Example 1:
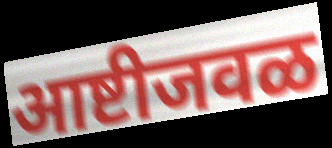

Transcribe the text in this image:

आष्टीजवळ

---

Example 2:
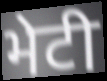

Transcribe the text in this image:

भेटी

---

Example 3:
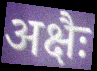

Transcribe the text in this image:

अक्षैः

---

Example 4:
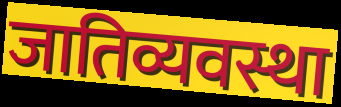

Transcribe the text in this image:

जातिव्यवस्था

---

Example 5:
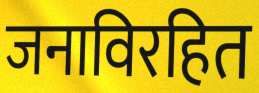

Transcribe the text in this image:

जनाविरहित